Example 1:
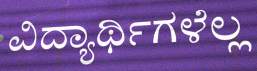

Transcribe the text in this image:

ವಿದ್ಯಾರ್ಥಿಗಳೆಲ್ಲ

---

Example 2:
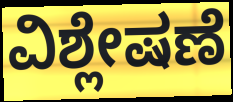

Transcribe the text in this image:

ವಿಶ್ಲೇಷಣೆ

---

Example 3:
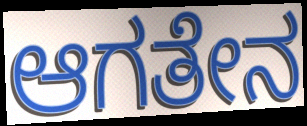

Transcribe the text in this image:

ಆಗತೇನ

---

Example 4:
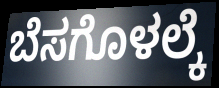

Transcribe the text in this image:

ಬೆಸಗೊಳಲ್ಕೆ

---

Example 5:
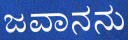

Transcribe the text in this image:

ಜವಾನನು